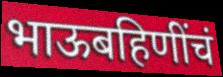
भाऊबहिणींचं